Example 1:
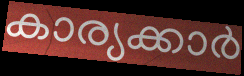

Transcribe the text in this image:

കാര്യക്കാർ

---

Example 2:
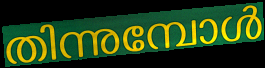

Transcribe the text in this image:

തിന്നുമ്പോൾ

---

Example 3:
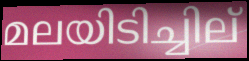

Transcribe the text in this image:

മലയിടിച്ചില്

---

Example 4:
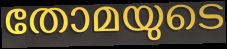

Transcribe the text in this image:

തോമയുടെ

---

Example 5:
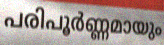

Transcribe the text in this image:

പരിപൂർണ്ണമായും